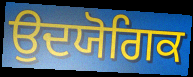
ਉਦਯੋਗਿਕ